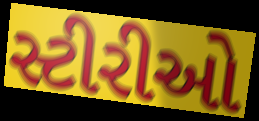
સ્ટીરીઓ